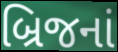
બ્રિજનાં